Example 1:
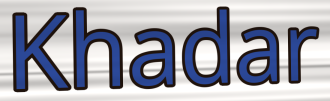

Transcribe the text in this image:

Khadar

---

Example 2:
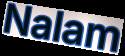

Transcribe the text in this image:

Nalam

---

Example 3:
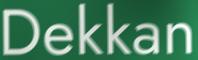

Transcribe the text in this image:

Dekkan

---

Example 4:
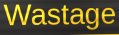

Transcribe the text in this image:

Wastage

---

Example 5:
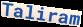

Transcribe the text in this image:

Taliram